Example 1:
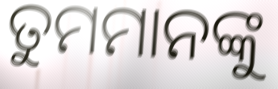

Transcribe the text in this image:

ତୁମମାନଙ୍କୁ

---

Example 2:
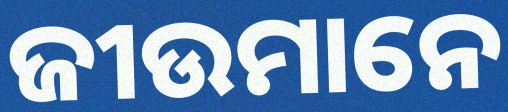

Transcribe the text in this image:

ଜୀଉମାନେ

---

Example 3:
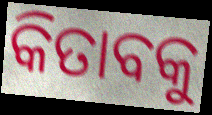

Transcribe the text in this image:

କିତାବକୁ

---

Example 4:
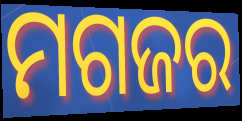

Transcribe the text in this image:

ମଗଜର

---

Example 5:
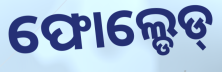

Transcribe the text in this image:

ଫୋଲ୍ଡେଡ୍